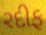
રદીફ